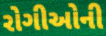
રોગીઓની